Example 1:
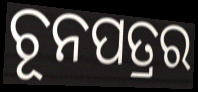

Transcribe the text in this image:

ଚୂନପତ୍ରର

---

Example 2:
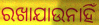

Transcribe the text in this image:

ରଖାଯାଉନାହିଁ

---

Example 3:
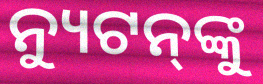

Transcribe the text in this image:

ନ୍ୟୁଟନ୍‌ଙ୍କୁ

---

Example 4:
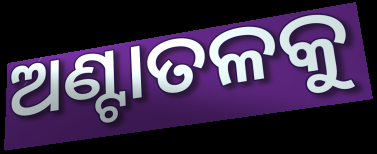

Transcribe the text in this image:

ଅଣ୍ଟାତଳକୁ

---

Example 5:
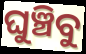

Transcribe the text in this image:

ଘୁଞ୍ଚିବୁ